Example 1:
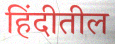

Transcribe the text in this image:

हिंदीतील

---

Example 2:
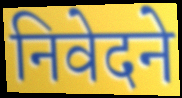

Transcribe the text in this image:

निवेदने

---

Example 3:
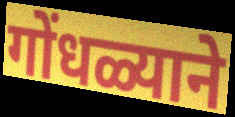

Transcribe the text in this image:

गोंधळ्याने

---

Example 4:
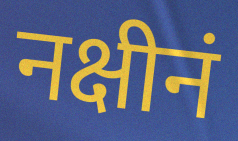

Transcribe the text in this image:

नक्षीनं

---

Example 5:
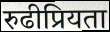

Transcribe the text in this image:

रुढीप्रियता